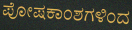
ಪೋಷಕಾಂಶಗಳಿಂದ